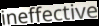
ineffective